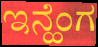
ಇನ್ಹೆಂಗ